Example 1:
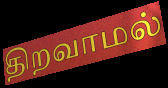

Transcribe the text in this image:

திறவாமல்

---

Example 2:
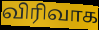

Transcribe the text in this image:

விரிவாக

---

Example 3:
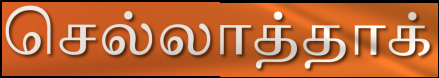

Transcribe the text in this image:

செல்லாத்தாக்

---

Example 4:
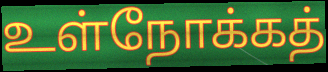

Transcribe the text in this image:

உள்நோக்கத்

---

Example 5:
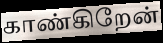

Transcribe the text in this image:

காண்கிறேன்